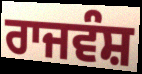
ਰਾਜਵੰਸ਼